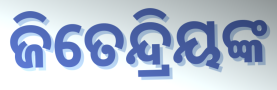
ଜିତେନ୍ଦ୍ରିୟଙ୍କ